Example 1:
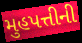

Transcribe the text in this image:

મુહપત્તીની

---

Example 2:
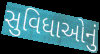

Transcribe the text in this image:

સુવિધાઓનું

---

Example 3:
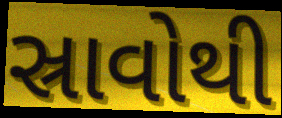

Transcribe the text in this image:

સ્રાવોથી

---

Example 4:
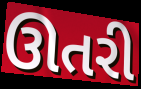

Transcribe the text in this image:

ઊતરી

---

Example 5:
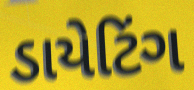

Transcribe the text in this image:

ડાયેટિંગ